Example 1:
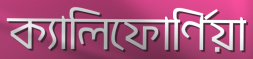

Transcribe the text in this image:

ক্যালিফোর্ণিয়া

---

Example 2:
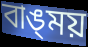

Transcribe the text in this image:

বাঙ্‌ময়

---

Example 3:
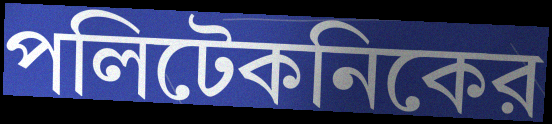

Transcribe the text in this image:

পলিটেকনিকের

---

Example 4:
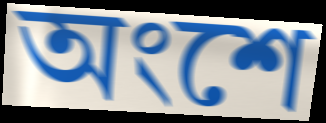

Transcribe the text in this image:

অংশে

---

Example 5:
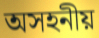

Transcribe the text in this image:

অসহনীয়